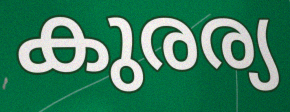
കുരര്യ